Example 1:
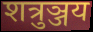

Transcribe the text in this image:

शत्रुञ्जय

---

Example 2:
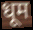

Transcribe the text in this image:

धूम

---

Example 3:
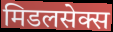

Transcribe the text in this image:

मिडलसेक्स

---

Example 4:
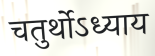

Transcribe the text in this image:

चतुर्थोऽध्याय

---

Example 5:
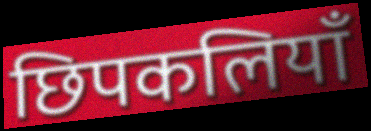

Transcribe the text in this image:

छिपकलियाँ